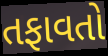
તફાવતો